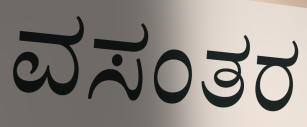
ವಸಂತರ